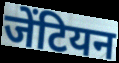
जेंटियन